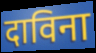
दाविना